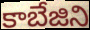
కాబేజిని